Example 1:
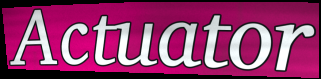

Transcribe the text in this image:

Actuator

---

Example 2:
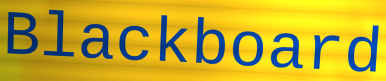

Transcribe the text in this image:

Blackboard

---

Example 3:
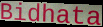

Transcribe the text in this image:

Bidhata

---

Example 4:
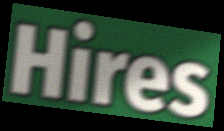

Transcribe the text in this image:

Hires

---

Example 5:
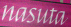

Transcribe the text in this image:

nasuta